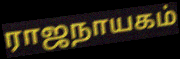
ராஜநாயகம்